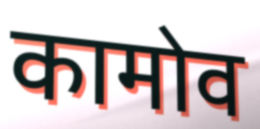
कामोव